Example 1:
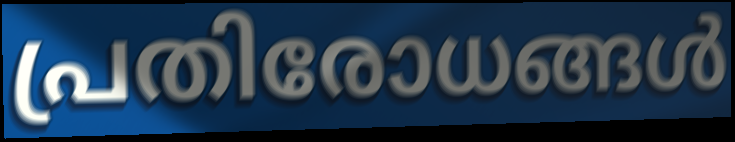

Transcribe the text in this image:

പ്രതിരോധങ്ങൾ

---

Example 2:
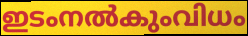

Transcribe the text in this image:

ഇടംനൽകുംവിധം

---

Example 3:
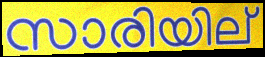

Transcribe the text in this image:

സാരിയില്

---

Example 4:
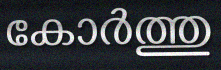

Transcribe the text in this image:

കോർത്തു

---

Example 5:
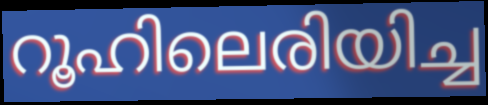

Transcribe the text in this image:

റൂഹിലെരിയിച്ച